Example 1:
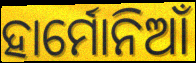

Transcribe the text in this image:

ହାର୍ମୋନିଆଁ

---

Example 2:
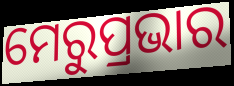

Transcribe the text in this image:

ମେରୁପ୍ରଭାର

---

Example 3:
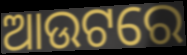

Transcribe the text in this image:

ଆଉଟରେ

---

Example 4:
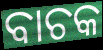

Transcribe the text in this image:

ବାଚକ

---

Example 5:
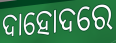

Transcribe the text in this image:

ଦାହୋଦରେ